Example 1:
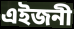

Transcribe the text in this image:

এইজনী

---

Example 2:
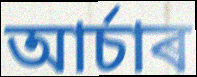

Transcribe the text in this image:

আৰ্চাৰ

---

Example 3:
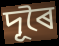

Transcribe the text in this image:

দূৰৈ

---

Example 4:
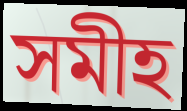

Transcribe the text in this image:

সমীহ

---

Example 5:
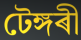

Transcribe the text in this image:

টেঙ্গৰী